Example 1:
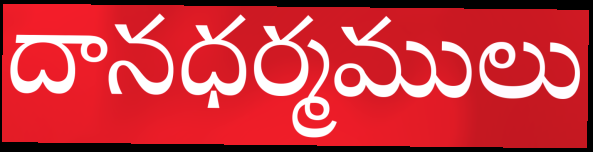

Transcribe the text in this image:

దానధర్మములు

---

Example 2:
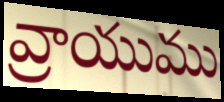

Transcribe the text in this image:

వ్రాయుము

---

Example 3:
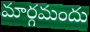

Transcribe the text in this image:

మార్గమందు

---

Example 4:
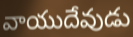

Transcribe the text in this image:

వాయుదేవుడు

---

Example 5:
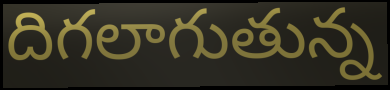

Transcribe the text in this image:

దిగలాగుతున్న